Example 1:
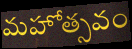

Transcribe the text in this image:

మహోత్సవం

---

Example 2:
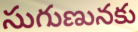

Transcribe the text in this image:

సుగుణునకు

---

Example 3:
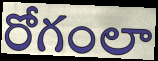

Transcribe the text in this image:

రోగంలా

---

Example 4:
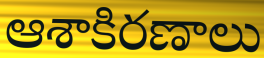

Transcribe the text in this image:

ఆశాకిరణాలు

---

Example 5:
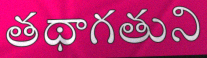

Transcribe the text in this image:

తథాగతుని